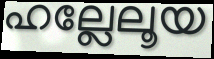
ഹല്ലേലൂയ